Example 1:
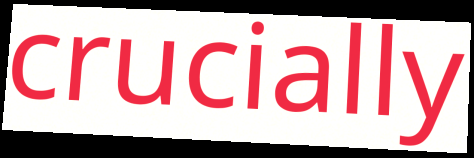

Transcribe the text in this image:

crucially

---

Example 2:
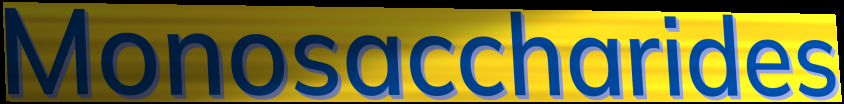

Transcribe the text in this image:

Monosaccharides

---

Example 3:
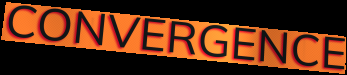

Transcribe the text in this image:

CONVERGENCE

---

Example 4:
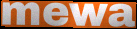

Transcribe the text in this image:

mewa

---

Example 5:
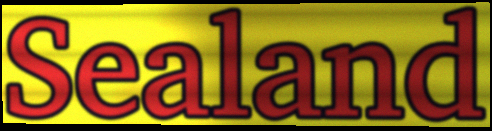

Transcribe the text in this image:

Sealand